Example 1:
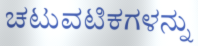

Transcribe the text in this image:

ಚಟುವಟಿಕಗಳನ್ನು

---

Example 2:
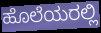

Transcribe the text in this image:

ಹೊಲೆಯರಲ್ಲಿ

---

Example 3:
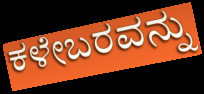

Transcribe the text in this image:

ಕಳೇಬರವನ್ನು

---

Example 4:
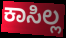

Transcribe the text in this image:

ಕಾಸಿಲ್ಲ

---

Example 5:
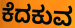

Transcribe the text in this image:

ಕೆದಕುವ